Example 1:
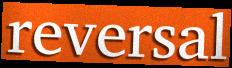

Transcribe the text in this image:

reversal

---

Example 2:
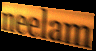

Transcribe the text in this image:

neelam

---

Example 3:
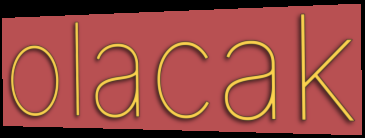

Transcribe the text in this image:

olacak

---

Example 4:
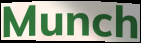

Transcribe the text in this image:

Munch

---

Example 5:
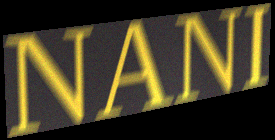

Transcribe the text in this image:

NANI